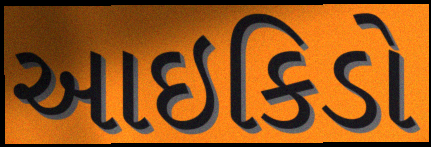
આઇકિડો